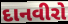
દાનવીરો